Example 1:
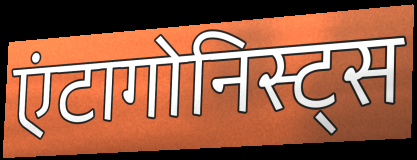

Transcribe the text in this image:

एंटागोनिस्ट्स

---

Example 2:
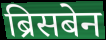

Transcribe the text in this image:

ब्रिसबेन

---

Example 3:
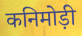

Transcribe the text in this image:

कनिमोड़ी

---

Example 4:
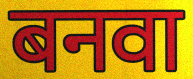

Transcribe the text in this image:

बनवा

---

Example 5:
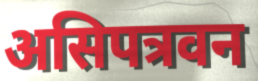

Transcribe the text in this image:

असिपत्रवन